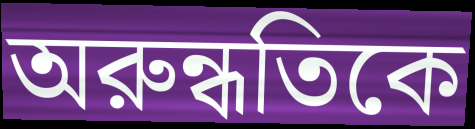
অরুন্ধতিকে